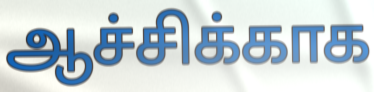
ஆச்சிக்காக